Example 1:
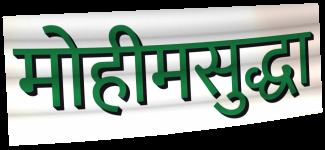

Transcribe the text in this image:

मोहीमसुद्धा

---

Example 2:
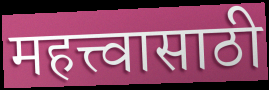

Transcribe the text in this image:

महत्त्वासाठी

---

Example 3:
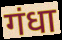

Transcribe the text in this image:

गंधा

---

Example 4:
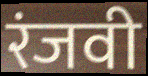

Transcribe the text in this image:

रंजवी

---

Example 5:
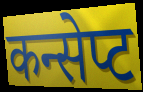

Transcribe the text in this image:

कन्सेप्ट